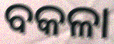
ବକଳା